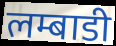
लम्बाडी